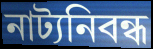
নাট্যনিবন্ধ